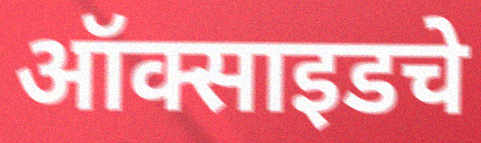
ऑक्साइडचे